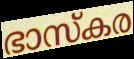
ഭാസ്കര